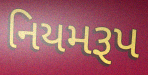
નિયમરૂપ